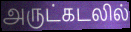
அருட்கடலில்